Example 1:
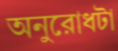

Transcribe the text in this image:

অনুরোধটা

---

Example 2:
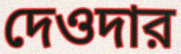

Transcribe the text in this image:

দেওদার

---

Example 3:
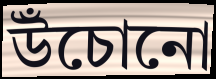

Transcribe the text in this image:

উঁচোনো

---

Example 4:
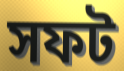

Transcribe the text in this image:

সফট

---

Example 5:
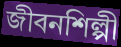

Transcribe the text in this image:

জীবনশিল্পী